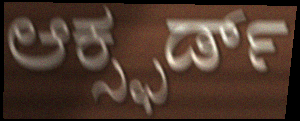
ಆಕ್ಸ್ಫರ್ಡ್